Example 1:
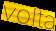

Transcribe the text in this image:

volta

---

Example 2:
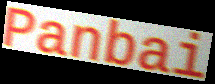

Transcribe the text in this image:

Panbai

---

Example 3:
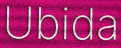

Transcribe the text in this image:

Ubida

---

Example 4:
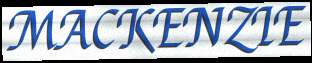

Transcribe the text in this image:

MACKENZIE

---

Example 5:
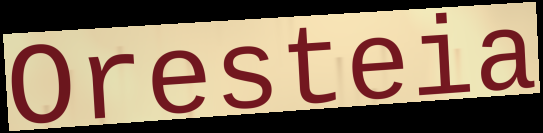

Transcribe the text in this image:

Oresteia